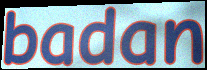
badan